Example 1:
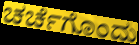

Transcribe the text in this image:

ಚರ್ಚೆಗೊಂದು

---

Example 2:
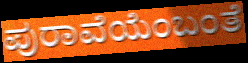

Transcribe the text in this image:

ಪುರಾವೆಯೆಂಬಂತೆ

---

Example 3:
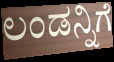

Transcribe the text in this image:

ಲಂಡನ್ನಿಗೆ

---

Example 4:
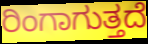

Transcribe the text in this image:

ರಿಂಗಾಗುತ್ತದೆ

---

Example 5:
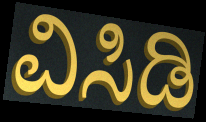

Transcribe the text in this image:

ವಿಸಿಡಿ